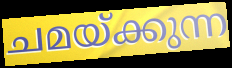
ചമയ്ക്കുന്ന